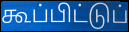
கூப்பிட்டுப்